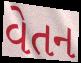
વેતન